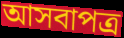
আসবাপত্র